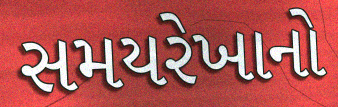
સમયરેખાનો